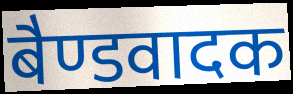
बैण्डवादक